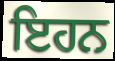
ਇਹਨ